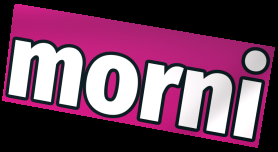
morni